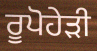
ਰੂਪੋਹੇੜੀ